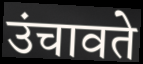
उंचावते